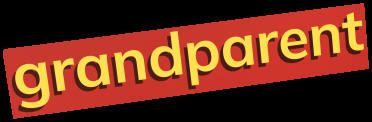
grandparent